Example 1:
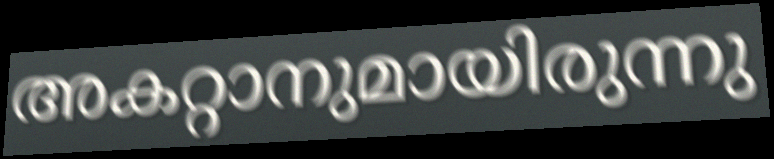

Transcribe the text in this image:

അകറ്റാനുമായിരുന്നു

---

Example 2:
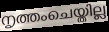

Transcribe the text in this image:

നൃത്തംചെയ്തില്ല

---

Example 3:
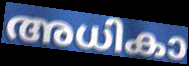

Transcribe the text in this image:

അധികാ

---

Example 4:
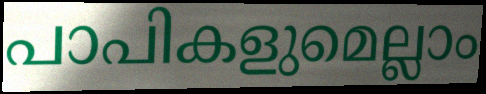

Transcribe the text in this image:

പാപികളുമെല്ലാം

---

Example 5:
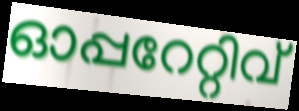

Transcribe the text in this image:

ഓപ്പറേറ്റിവ്